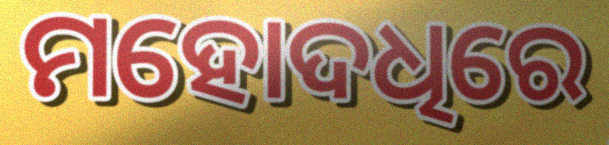
ମହୋଦଧିରେ